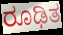
ರೂಢಿತ